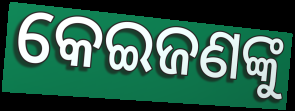
କେଇଜଣଙ୍କୁ